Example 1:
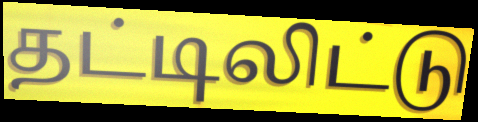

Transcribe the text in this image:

தட்டிலிட்டு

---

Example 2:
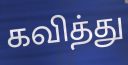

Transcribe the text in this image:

கவித்து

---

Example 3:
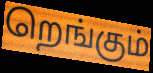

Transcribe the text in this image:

றெங்கும்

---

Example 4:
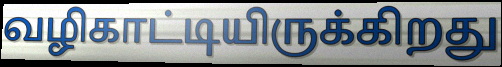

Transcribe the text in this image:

வழிகாட்டியிருக்கிறது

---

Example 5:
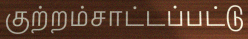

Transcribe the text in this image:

குற்றம்சாட்டப்பட்டு